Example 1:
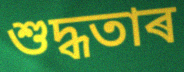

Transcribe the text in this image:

শুদ্ধতাৰ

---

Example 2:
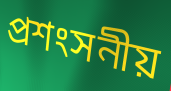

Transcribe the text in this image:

প্ৰশংসনীয়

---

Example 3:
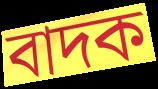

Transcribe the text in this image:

বাদক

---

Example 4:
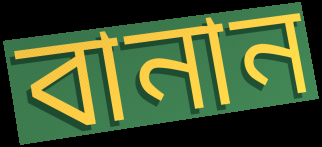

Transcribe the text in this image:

বানান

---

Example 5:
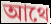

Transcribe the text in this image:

আথে